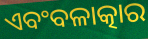
ଏବଂବଳାତ୍କାର